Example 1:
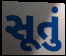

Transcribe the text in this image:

સૂતું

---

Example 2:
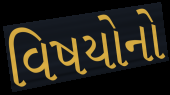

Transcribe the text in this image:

વિષયોનો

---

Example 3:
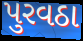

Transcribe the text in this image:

પુરવઠા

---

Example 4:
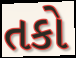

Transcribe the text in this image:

તકો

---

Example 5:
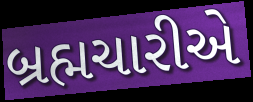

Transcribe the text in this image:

બ્રહ્મચારીએ